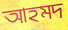
আহমদ